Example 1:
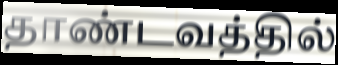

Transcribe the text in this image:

தாண்டவத்தில்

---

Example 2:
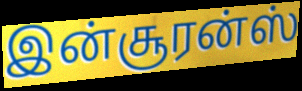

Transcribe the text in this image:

இன்சூரன்ஸ்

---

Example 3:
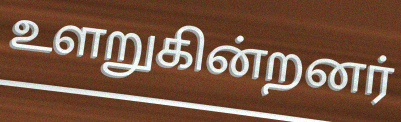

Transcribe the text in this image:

உளறுகின்றனர்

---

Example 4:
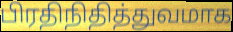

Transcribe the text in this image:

பிரதிநிதித்துவமாக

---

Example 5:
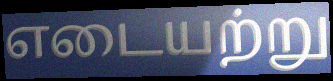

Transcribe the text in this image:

எடையற்று